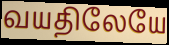
வயதிலேயே